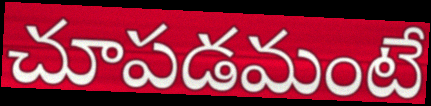
చూపడమంటే